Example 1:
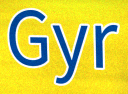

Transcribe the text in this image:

Gyr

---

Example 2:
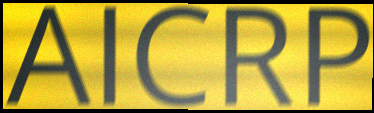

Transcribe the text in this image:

AICRP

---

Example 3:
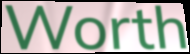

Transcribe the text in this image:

Worth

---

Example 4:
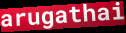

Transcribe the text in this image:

arugathai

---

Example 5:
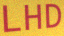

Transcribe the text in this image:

LHD